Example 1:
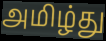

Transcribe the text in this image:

அமிழ்து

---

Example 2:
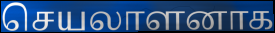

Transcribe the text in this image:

செயலாளனாக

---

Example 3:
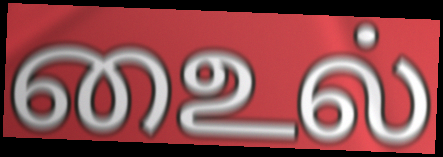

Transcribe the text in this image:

உைல்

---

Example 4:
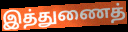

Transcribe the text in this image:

இத்துணைத்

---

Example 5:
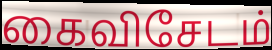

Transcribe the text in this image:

கைவிசேடம்